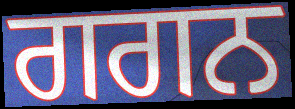
ਗਗਨ